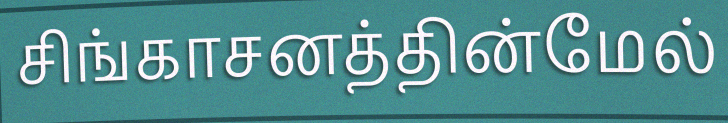
சிங்காசனத்தின்மேல்